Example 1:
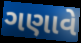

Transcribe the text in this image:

ગણાવે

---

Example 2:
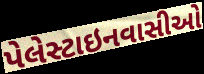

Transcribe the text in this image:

પેલેસ્ટાઇનવાસીઓ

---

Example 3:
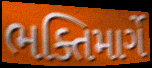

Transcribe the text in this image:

ભક્તિમાર્ગે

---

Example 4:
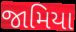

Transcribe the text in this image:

જામિયા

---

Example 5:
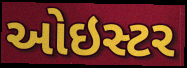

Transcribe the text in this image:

ઓઇસ્ટર